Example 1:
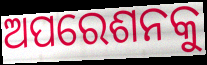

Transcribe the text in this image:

ଅପରେଶନକୁ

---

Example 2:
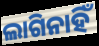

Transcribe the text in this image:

ଲାଗିନାହିଁ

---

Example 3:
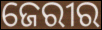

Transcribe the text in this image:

ଜେରୀର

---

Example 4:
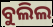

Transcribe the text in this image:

ବୁଲିଲ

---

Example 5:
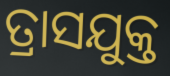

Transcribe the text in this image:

ତ୍ରାସଯୁକ୍ତ